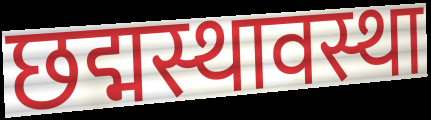
छद्मस्थावस्था